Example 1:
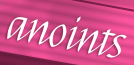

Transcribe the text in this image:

anoints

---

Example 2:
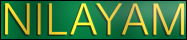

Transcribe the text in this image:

NILAYAM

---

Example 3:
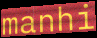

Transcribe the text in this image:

manhi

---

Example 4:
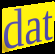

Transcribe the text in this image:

dat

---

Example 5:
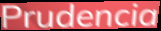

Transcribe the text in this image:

Prudencia